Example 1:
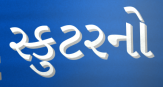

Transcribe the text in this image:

સ્કુટરનો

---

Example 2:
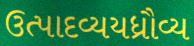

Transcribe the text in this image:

ઉત્પાદવ્યયધ્રૌવ્ય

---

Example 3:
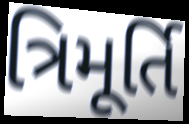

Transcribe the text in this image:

ત્રિમૂર્તિ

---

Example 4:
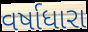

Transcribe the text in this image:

વર્ષાધારા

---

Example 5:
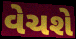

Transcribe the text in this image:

વેચશે